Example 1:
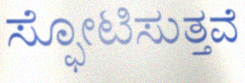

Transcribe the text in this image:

ಸ್ಫೋಟಿಸುತ್ತವೆ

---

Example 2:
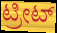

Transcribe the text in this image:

ಟ್ರೀಟ್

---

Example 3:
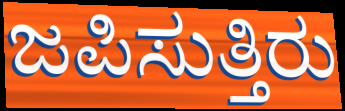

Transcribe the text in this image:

ಜಪಿಸುತ್ತಿರು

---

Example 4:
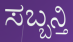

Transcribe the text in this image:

ಸಬ್ಬನ್ತಿ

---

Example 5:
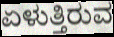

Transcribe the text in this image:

ಏಳುತ್ತಿರುವ